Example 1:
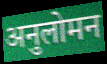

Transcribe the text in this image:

अनुलोमन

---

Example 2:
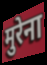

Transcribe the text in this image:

मुरेना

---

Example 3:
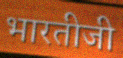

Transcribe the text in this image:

भारतीजी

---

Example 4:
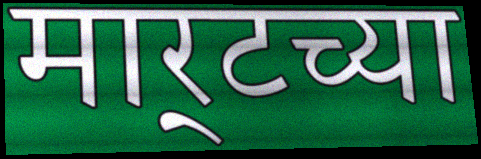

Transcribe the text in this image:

मार्टच्या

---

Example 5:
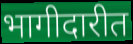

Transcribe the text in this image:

भागीदारीत